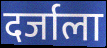
दर्जाला